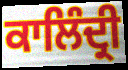
ਕਾਲਿੰਦ੍ਰੀ